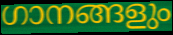
ഗാനങ്ങളും